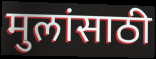
मुलांसाठी